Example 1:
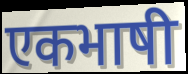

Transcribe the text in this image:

एकभाषी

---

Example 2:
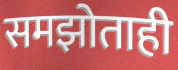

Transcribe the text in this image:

समझोताही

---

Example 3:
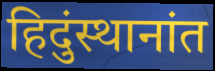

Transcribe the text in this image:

हिदुंस्थानांत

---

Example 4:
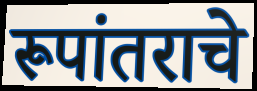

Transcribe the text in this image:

रूपांतराचे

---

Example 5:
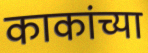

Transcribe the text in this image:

काकांच्या